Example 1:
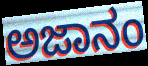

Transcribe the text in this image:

ಅಜಾನಂ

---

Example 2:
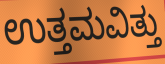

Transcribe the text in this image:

ಉತ್ತಮವಿತ್ತು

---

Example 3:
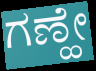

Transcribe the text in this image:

ಗಣ್ಹೇ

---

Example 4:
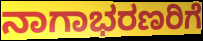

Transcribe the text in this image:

ನಾಗಾಭರಣರಿಗೆ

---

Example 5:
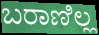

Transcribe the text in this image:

ಬರಾಣಿಲ್ಲ